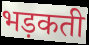
भड़कती